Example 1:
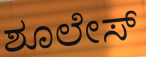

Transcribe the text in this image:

ಶೂಲೇಸ್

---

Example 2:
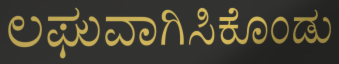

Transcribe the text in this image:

ಲಘುವಾಗಿಸಿಕೊಂಡು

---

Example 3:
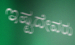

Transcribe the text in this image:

ಇಷ್ಟದೇವರು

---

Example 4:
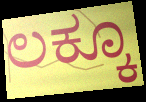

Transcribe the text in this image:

ಲಕ್ಕೂ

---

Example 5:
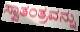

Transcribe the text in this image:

ಸ್ವಾತಂತ್ರವನ್ನು